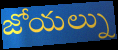
జోయల్ను